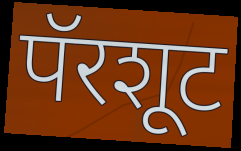
पॅरशूट